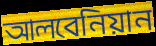
আলবেনিয়ান